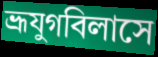
ভ্রূযুগবিলাসে